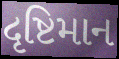
દૃષ્ટિમાન